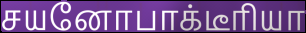
சயனோபாக்டீரியா